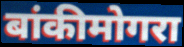
बांकीमोगरा